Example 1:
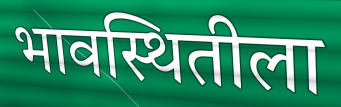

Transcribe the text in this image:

भावस्थितीला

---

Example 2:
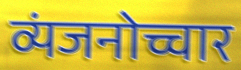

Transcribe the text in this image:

व्यंजनोच्चार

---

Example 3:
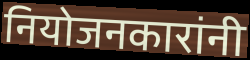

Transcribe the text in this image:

नियोजनकारांनी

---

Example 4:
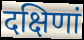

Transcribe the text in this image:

दक्षिणां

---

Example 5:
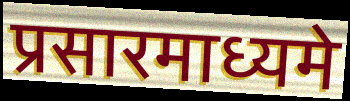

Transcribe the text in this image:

प्रसारमाध्यमे